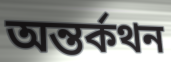
অন্তর্কথন